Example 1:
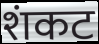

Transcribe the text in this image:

शंकट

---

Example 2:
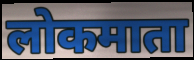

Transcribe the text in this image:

लोकमाता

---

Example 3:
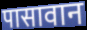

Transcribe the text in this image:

पासावान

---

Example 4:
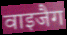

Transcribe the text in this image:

वाइजैग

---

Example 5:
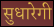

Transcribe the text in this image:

सुधारेगी